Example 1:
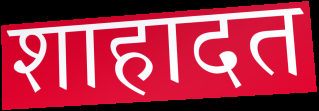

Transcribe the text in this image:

शाहादत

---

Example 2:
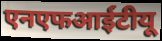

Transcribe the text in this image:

एनएफआईटीयू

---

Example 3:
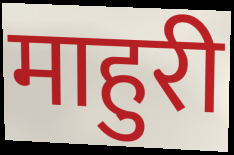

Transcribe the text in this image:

माहुरी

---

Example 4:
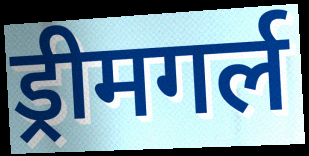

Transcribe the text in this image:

ड्रीमगर्ल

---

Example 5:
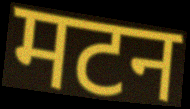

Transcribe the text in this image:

मटन